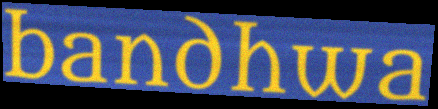
bandhwa